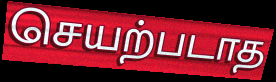
செயற்படாத